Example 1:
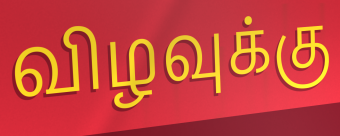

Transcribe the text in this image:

விழவுக்கு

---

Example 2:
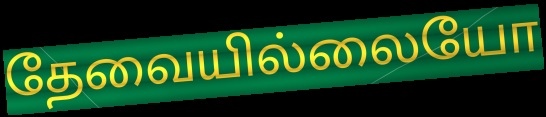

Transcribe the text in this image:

தேவையில்லையோ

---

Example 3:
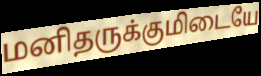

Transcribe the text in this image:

மனிதருக்குமிடையே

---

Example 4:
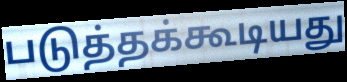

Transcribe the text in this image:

படுத்தக்கூடியது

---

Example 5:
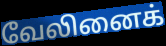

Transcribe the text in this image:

வேலினைக்